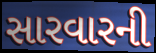
સારવારની